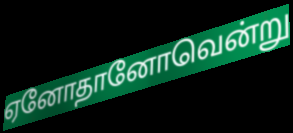
ஏனோதானோவென்று